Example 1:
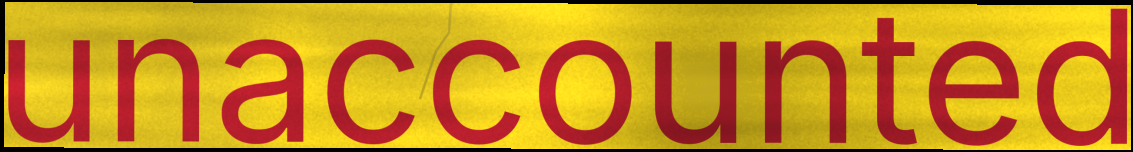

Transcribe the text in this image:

unaccounted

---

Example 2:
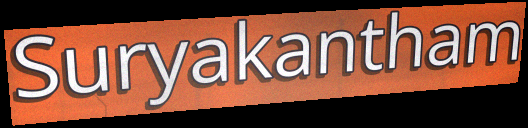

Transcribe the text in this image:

Suryakantham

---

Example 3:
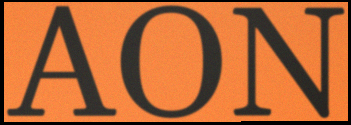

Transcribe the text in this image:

AON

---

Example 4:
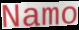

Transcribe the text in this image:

Namo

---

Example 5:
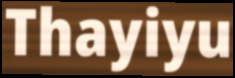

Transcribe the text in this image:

Thayiyu